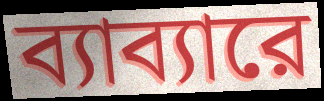
ব্যাব্যারে